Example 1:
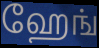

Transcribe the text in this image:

ஹேங்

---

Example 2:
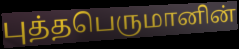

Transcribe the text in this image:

புத்தபெருமானின்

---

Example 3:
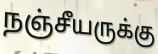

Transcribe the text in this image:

நஞ்சீயருக்கு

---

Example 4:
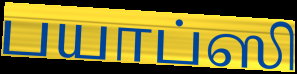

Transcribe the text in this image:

பயாப்ஸி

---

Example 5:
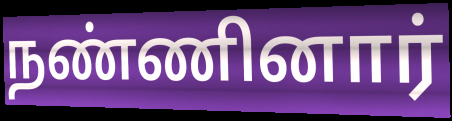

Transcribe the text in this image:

நண்ணினார்